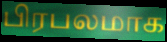
பிரபலமாக